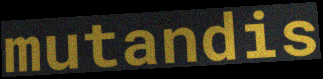
mutandis